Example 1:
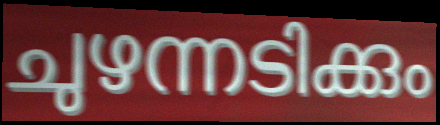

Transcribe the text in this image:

ചുഴന്നടിക്കും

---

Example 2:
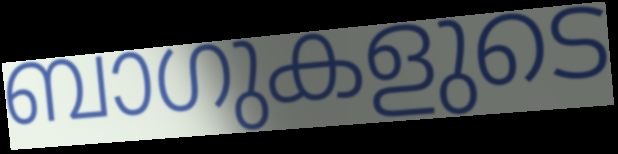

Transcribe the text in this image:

ബാഗുകളുടെ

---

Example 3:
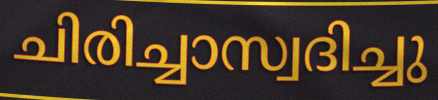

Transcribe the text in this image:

ചിരിച്ചാസ്വദിച്ചു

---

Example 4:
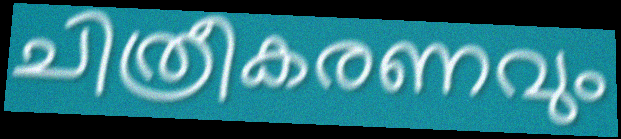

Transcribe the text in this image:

ചിത്രീകരണവും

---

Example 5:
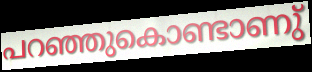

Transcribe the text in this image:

പറഞ്ഞുകൊണ്ടാണു്